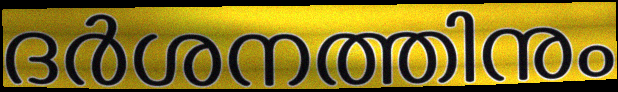
ദർശനത്തിനും